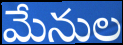
మేనుల